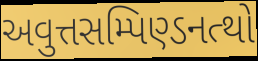
અવુત્તસમ્પિણ્ડનત્થો